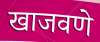
खाजवणे